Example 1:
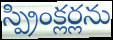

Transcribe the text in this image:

స్ప్రింక్లర్లను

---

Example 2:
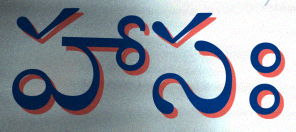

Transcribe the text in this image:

హాసః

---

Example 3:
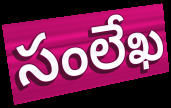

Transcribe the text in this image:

సంలేఖ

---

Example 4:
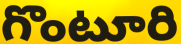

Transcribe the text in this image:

గొంటూరి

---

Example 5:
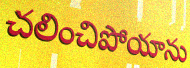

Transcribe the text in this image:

చలించిపోయాను